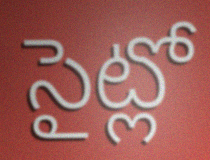
సైట్లో